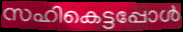
സഹികെട്ടപ്പോൾ